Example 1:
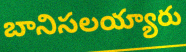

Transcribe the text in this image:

బానిసలయ్యారు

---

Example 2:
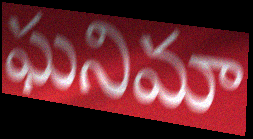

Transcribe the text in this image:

ఘనిమా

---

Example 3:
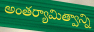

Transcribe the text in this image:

అంతర్యామిత్వాన్ని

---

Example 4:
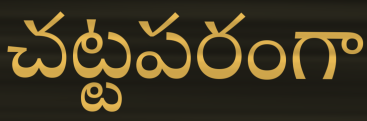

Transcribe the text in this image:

చట్టపరంగా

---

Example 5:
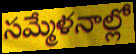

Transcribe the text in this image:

సమ్మేళనాల్లో